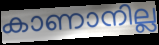
കാണാനില്ല